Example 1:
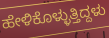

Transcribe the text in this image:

ಹೇಳಿಕೊಳ್ಳುತ್ತಿದ್ದಳು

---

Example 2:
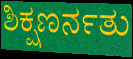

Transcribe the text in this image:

ಶಿಕ್ಷಣರ್ನತು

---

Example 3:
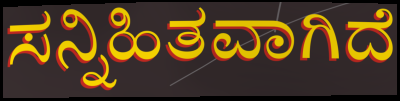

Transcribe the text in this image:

ಸನ್ನಿಹಿತವಾಗಿದೆ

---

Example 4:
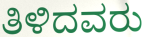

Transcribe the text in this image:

ತಿಳಿದವರು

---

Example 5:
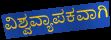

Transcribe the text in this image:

ವಿಶ್ವವ್ಯಾಪಕವಾಗಿ